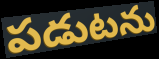
పడుటను